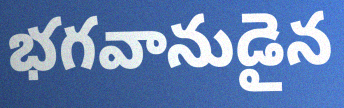
భగవానుడైన